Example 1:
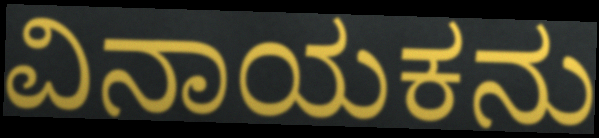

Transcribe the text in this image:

ವಿನಾಯಕನು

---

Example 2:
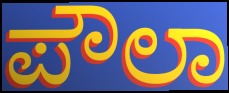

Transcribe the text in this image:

ಪೌಲಾ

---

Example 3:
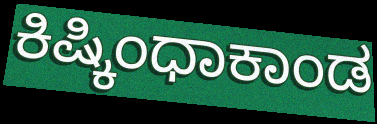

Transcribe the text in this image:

ಕಿಷ್ಕಿಂಧಾಕಾಂಡ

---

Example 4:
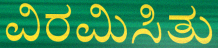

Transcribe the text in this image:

ವಿರಮಿಸಿತು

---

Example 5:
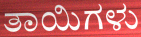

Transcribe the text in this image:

ತಾಯಿಗಳು